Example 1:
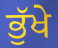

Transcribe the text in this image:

ਭੁੱਖੇ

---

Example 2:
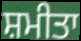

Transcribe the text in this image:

ਸ਼ਮੀਤਾ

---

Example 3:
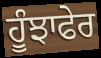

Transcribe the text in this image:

ਹੂੰਝਾਫੇਰ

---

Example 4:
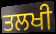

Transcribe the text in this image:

ਤਲਖੀ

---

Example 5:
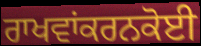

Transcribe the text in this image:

ਰਾਖਵਾਂਕਰਨਕੋਈ